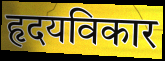
हृदयविकार